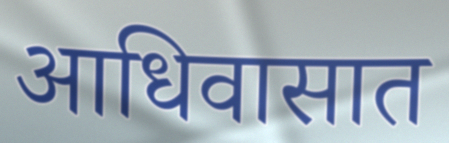
आधिवासात